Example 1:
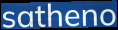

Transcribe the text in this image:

satheno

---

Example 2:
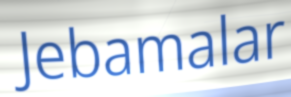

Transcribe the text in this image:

Jebamalar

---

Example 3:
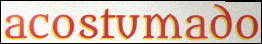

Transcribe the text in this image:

acostumado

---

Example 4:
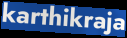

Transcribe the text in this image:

karthikraja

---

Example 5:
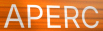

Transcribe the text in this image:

APERC